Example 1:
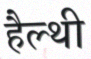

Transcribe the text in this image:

हैल्थी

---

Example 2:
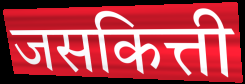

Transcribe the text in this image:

जसकित्ती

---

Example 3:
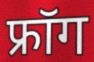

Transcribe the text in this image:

फ्रॉग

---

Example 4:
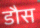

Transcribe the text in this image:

डौस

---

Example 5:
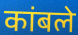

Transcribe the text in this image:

कांबले